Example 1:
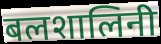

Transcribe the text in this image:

बलशालिनी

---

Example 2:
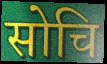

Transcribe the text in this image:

सोचि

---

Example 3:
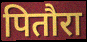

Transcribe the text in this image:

पितौरा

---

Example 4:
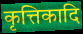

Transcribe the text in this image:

कृत्तिकादि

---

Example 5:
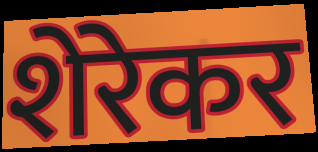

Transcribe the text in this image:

शेरेकर